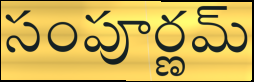
సంపూర్ణమ్